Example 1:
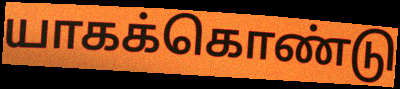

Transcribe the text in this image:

யாகக்கொண்டு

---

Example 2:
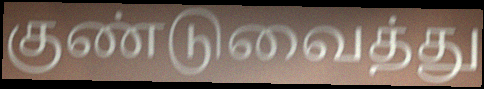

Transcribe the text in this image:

குண்டுவைத்து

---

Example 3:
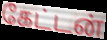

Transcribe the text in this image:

கேட்டன்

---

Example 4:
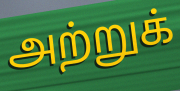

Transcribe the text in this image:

அற்றுக்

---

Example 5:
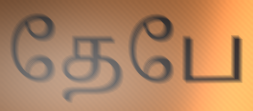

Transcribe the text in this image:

தேபே